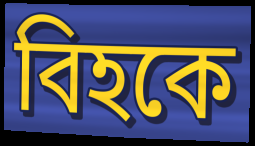
বিহকে